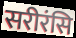
सरीरंसि